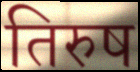
तिरुष